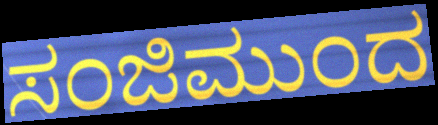
ಸಂಜಿಮುಂದ